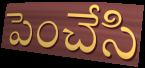
పెంచేసి